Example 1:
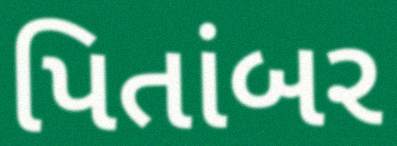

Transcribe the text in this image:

પિતાંબર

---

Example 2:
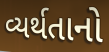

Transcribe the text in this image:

વ્યર્થતાનો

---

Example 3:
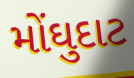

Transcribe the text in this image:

મોંઘુદાટ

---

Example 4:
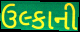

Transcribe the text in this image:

ઉલ્કાની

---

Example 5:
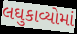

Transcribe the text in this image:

લઘુકાવ્યોમાં